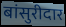
बांसुरीदार